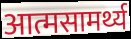
आत्मसामर्थ्य